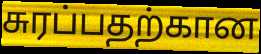
சுரப்பதற்கான